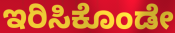
ಇರಿಸಿಕೊಂಡೇ